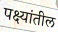
पक्ष्यांतील